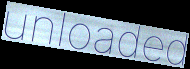
unloaded